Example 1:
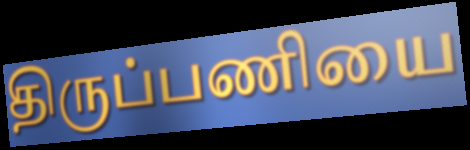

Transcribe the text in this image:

திருப்பணியை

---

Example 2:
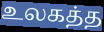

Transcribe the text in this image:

உலகத்த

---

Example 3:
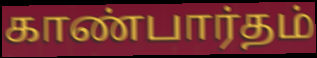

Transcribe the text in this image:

காண்பார்தம்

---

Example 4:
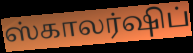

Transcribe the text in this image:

ஸ்காலர்ஷிப்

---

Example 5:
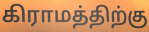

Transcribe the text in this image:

கிராமத்திற்கு